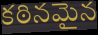
కఠినమైన